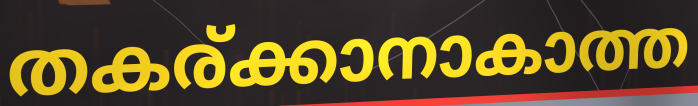
തകര്ക്കാനാകാത്ത